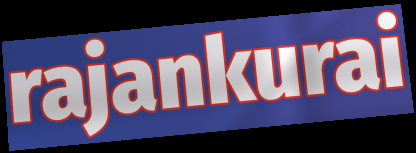
rajankurai